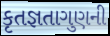
કૃતજ્ઞતાગુણની